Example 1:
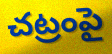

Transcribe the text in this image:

చట్రంపై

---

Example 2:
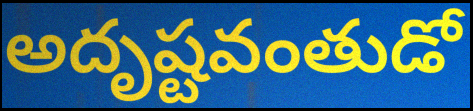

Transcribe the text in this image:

అదృష్టవంతుడో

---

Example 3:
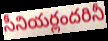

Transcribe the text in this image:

సీనియర్లందరినీ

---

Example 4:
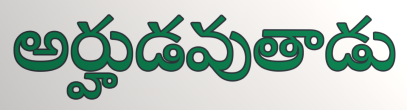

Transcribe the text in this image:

అర్హుడవుతాడు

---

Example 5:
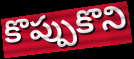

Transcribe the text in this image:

కొప్పుకొని